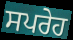
ਸਪਰੇਹ